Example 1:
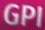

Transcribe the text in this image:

GPI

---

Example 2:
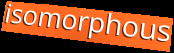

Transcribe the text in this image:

isomorphous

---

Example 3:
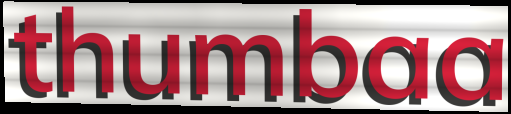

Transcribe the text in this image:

thumbaa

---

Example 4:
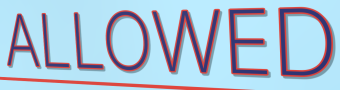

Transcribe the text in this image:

ALLOWED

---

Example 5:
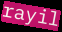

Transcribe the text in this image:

rayil